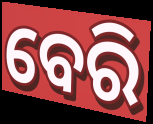
ବେରି